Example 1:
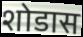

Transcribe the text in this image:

शोडास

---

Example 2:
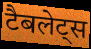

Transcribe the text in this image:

टैबलेट्स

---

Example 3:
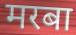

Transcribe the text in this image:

मरबा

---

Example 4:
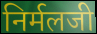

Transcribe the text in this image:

निर्मलजी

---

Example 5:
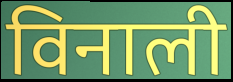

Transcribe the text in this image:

विनाली